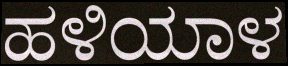
ಹಳಿಯಾಳ